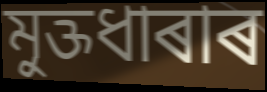
মুক্তধাৰাৰ